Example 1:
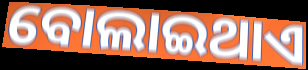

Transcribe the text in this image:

ବୋଲାଇଥାଏ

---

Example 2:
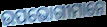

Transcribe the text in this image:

ଉପଭୋଗୀମାନେ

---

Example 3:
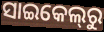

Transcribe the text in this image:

ସାଇକେଲ୍‌ରୁ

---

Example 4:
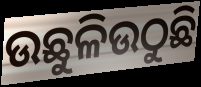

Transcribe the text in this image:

ଉଛୁଳିଉଠୁଛି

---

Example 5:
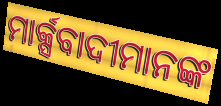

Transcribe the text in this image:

ମାର୍କ୍ସବାଦୀମାନଙ୍କ